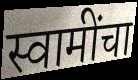
स्वामींचा